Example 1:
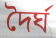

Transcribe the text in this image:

দৈৰ্ঘ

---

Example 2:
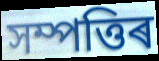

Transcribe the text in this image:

সম্পত্তিৰ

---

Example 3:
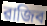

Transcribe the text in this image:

ৱাজিব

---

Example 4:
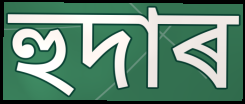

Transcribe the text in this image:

হুদাৰ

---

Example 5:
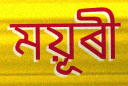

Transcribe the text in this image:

ময়ূৰী